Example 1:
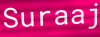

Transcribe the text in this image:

Suraaj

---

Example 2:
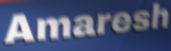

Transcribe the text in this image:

Amaresh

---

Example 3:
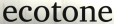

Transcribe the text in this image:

ecotone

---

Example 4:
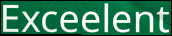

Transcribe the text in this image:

Exceelent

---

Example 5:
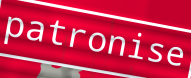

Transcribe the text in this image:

patronise